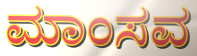
ಮಾಂಸವ